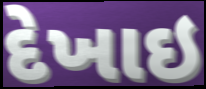
દેખાઇ